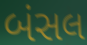
બંસલ